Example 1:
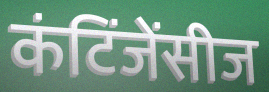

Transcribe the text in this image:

कंटिंजेंसीज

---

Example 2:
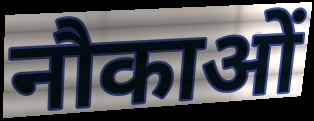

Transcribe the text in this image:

नौकाओं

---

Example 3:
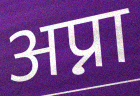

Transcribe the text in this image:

अप्ना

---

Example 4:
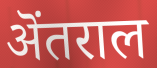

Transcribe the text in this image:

ऄंतराल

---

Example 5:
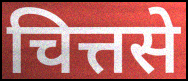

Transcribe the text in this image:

चित्तसे